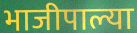
भाजीपाल्या